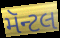
મૅન્ટલ